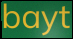
bayt